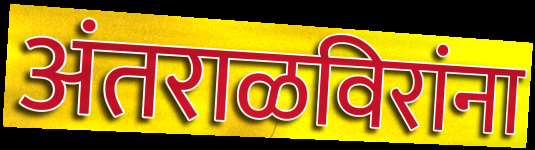
अंतराळविरांना